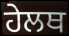
ਹੇਲਥ